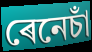
ৰেনেচাঁ